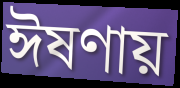
ঈষণায়